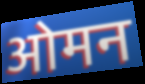
ओमन